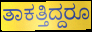
ತಾಕತ್ತಿದ್ದರೂ